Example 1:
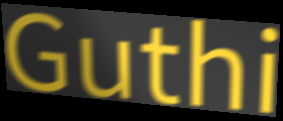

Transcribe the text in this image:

Guthi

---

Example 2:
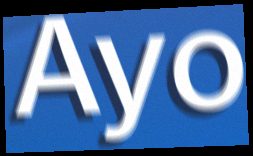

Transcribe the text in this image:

Ayo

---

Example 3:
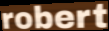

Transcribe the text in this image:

robert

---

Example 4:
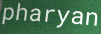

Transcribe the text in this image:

pharyan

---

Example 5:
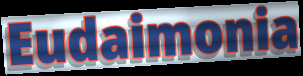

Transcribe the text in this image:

Eudaimonia